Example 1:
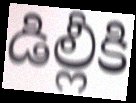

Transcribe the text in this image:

డిల్లీకి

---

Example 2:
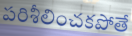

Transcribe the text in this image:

పరిశీలించకపోతే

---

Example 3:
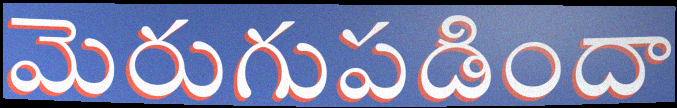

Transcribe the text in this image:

మెరుగుపడిందా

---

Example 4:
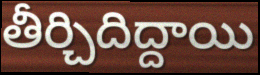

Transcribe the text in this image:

తీర్చిదిద్దాయి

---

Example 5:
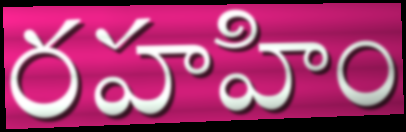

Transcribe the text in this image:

రహహిం